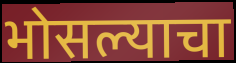
भोसल्याचा